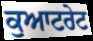
ਕੁਆਟਰੇਟ